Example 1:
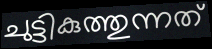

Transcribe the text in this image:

ചുട്ടികുത്തുന്നത്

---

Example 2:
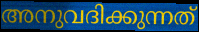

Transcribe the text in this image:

അനുവദിക്കുന്നത്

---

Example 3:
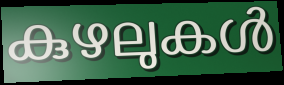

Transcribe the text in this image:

കുഴലുകൾ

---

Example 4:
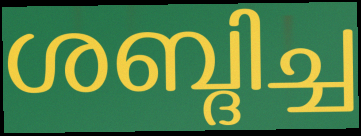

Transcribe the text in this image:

ശബ്ദിച്ച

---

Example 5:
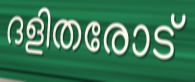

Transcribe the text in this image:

ദളിതരോട്